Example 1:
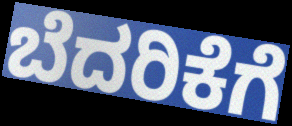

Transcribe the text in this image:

ಬೆದರಿಕೆಗೆ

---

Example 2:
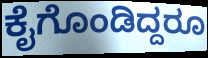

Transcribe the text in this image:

ಕೈಗೊಂಡಿದ್ದರೂ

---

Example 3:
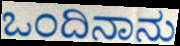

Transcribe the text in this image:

ಒಂದಿನಾನು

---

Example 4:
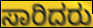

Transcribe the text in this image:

ಸಾರಿದರು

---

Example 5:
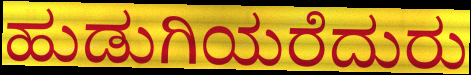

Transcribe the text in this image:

ಹುಡುಗಿಯರೆದುರು